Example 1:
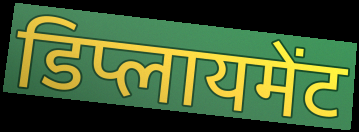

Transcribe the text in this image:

डिप्लायमेंट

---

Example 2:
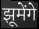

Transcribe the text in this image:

झूमेंगे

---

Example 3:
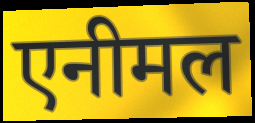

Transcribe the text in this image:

एनीमल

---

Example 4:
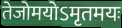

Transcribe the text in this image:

तेजोमयोऽमृतमयः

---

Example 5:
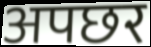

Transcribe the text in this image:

अपछर